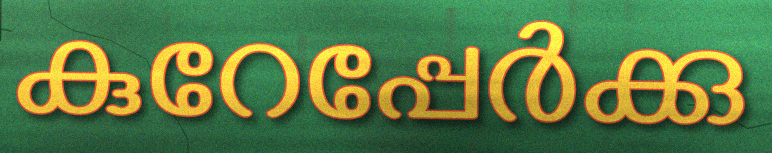
കുറേപ്പേർക്കു